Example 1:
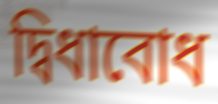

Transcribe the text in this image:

দ্বিধাবোধ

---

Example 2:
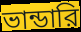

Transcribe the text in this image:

ভান্ডারি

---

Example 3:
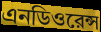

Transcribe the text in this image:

এনডিওরেন্স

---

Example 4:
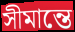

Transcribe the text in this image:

সীমান্তে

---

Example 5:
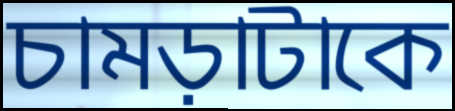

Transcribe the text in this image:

চামড়াটাকে